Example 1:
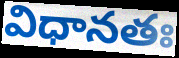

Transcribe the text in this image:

విధానతః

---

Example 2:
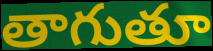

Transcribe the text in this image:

తాగుతూ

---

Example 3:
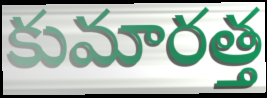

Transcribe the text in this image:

కుమారత్త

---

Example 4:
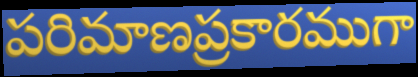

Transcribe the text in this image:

పరిమాణప్రకారముగా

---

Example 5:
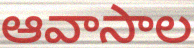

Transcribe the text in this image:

ఆవాసాల